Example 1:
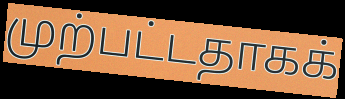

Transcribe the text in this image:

முற்பட்டதாகக்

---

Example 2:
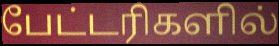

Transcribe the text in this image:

பேட்டரிகளில்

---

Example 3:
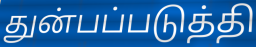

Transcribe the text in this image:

துன்பப்படுத்தி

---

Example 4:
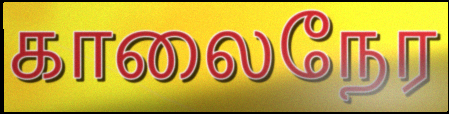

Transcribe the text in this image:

காலைநேர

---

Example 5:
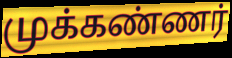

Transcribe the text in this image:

முக்கண்ணர்